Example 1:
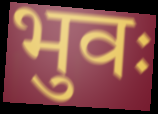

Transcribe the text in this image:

भुवः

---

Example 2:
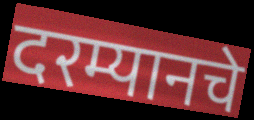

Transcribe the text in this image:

दरम्यानचे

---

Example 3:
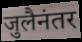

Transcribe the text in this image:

जुलैनंतर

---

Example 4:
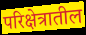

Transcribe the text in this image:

परिक्षेत्रातील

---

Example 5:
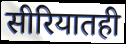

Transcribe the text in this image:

सीरियातही